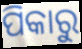
ପିକାରୁ